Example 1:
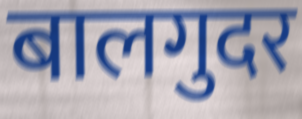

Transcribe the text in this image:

बालगुदर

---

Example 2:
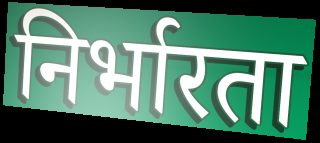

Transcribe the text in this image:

निर्भारता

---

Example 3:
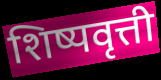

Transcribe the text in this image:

शिष्यवृत्ती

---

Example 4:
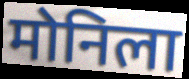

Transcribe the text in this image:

मोनिला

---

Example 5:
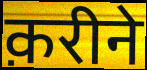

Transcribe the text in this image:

क़रीने